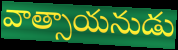
వాత్సాయనుడు